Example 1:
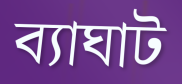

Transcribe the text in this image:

ব্যাঘাট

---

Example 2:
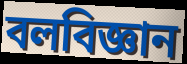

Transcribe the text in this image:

বলবিজ্ঞান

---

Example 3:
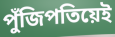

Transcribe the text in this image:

পুঁজিপতিয়েই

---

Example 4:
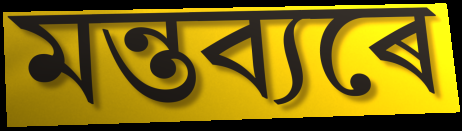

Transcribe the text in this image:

মন্তব্যৰে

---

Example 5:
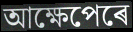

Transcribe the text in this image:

আক্ষেপেৰে